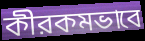
কীরকমভাবে